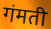
गंमती